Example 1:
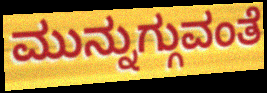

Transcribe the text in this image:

ಮುನ್ನುಗ್ಗುವಂತೆ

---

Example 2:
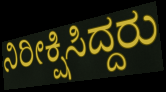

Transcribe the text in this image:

ನಿರೀಕ್ಷಿಸಿದ್ದರು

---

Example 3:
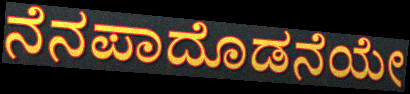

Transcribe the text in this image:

ನೆನಪಾದೊಡನೆಯೇ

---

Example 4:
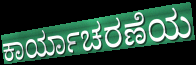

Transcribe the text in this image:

ಕಾರ್ಯಾಚರಣೆಯ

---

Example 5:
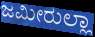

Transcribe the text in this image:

ಜಮೀರುಲ್ಲಾ